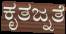
ಕೃತಜ್ನತೆ